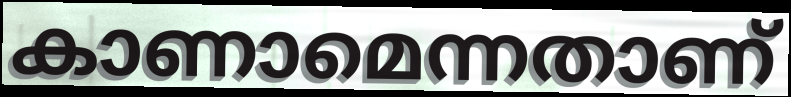
കാണാമെന്നതാണ്